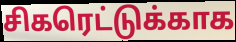
சிகரெட்டுக்காக